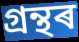
গ্ৰন্থৰ